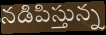
నడిపిస్తున్న